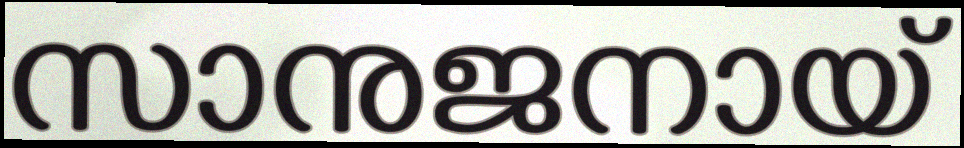
സാനുജനായ്